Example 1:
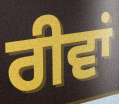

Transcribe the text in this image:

ਰੀਵਾਂ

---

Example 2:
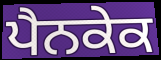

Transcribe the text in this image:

ਪੈਨਕੇਕ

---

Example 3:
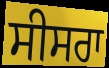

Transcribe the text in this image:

ਸੀਸਰਾ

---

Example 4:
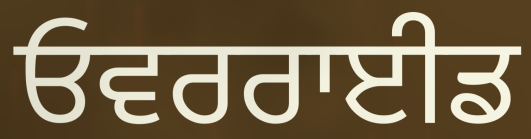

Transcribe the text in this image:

ਓਵਰਰਾਈਡ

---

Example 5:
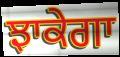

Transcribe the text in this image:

ਝਾਕੇਗਾ